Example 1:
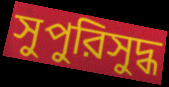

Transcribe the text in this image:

সুপুরিসুদ্ধ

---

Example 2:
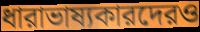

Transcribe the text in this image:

ধারাভাষ্যকারদেরও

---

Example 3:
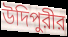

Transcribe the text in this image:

উদিপুরীর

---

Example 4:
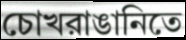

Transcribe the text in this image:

চোখরাঙানিতে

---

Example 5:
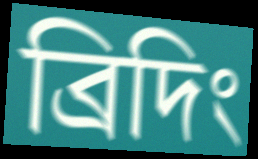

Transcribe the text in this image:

ব্রিদিং